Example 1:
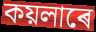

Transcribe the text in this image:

কয়লাৰে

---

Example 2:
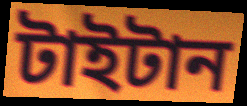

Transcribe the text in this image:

টাইটান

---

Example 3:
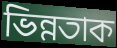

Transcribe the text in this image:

ভিন্নতাক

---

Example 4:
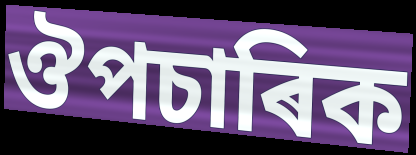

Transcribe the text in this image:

ঔপচাৰিক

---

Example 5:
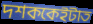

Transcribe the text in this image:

দশককেইটাত